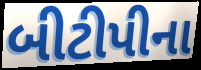
બીટીપીના